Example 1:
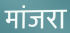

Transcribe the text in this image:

मांजरा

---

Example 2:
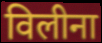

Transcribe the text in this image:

विलीना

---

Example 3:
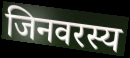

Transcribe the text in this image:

जिनवरस्य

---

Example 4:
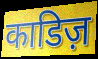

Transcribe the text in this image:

काडिज़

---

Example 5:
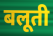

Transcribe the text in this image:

बलूती